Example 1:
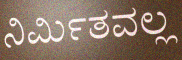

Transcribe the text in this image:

ನಿರ್ಮಿತವಲ್ಲ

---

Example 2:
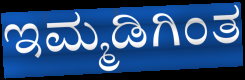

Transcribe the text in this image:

ಇಮ್ಮಡಿಗಿಂತ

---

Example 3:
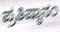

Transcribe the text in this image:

ಪ್ರತಿಷ್ಠಾನಂ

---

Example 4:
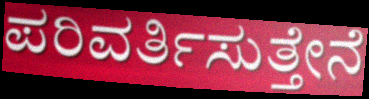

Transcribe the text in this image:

ಪರಿವರ್ತಿಸುತ್ತೇನೆ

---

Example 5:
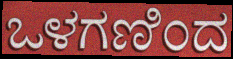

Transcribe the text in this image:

ಒಳಗಣಿಂದ